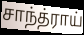
சாந்த்ராய்